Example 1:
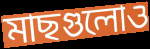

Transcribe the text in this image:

মাছগুলোও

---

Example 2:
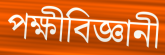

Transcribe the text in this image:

পক্ষীবিজ্ঞানী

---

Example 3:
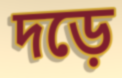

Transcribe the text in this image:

দড়ে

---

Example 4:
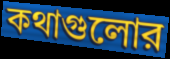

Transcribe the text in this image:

কথাগুলোর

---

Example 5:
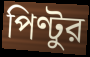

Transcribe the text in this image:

পিণ্টুর